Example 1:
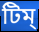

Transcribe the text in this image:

টিম্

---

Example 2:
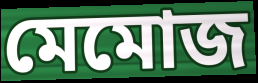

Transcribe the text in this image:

মেমোজ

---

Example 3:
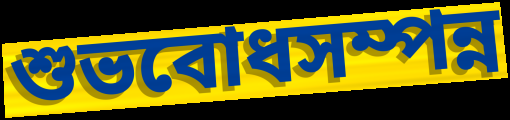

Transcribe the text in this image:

শুভবোধসম্পন্ন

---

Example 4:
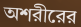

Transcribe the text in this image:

অশরীরের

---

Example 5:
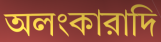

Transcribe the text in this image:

অলংকারাদি